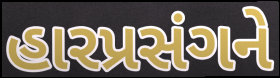
હારપ્રસંગને